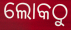
ଲୋକଠୁ